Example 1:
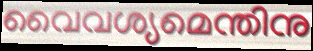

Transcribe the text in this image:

വൈവശ്യമെന്തിനു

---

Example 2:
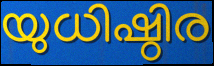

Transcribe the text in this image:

യുധിഷ്ഠിര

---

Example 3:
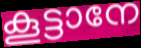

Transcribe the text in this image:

കൂട്ടാനേ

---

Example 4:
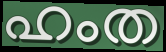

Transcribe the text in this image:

ഹംത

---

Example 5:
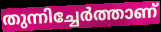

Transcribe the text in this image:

തുന്നിച്ചേർത്താണ്